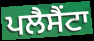
ਪਲੈਸੈਂਟਾ